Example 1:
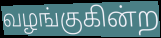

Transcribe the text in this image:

வழங்குகின்ற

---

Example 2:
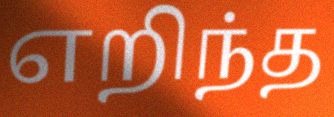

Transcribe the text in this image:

எறிந்த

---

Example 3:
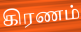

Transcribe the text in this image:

கிரணம்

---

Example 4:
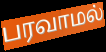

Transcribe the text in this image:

பரவாமல்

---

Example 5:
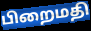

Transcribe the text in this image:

பிறைமதி